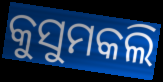
କୁସୁମକଲି